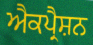
ਐਕਪ੍ਰੈਸ਼ਨ